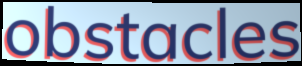
obstacles